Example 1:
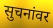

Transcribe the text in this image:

सुचनांवर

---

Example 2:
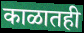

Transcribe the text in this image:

काळातही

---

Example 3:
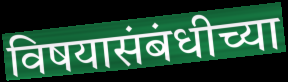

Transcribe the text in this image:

विषयासंबंधीच्या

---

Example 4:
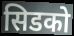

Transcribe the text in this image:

सिडको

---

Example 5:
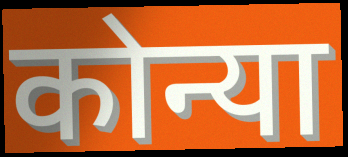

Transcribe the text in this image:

कोन्या